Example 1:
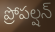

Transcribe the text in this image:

ప్రోపల్షన్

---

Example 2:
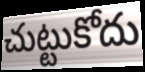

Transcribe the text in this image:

చుట్టుకోదు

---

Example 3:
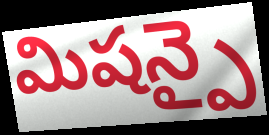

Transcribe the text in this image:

మిషన్పై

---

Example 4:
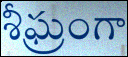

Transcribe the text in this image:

శీఘ్రంగా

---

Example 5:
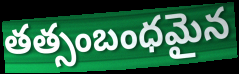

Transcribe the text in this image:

తత్సంబంధమైన